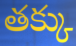
తక్కు